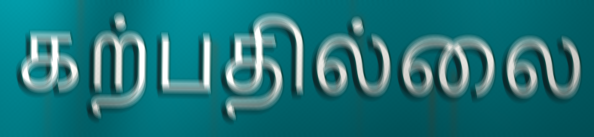
கற்பதில்லை